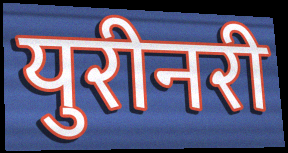
युरीनरी